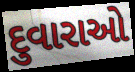
દુવારાઓ